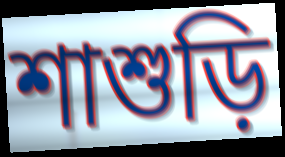
শাশুড়ি